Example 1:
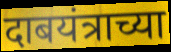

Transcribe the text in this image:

दाबयंत्राच्या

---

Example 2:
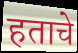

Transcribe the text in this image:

हताचे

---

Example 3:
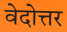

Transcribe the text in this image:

वेदोत्तर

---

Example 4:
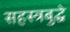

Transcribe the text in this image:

सहस्त्रबुद्धे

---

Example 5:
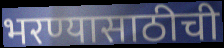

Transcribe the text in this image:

भरण्यासाठीची